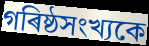
গৰিষ্ঠসংখ্যকে